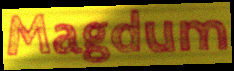
Magdum